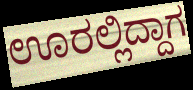
ಊರಲ್ಲಿದ್ದಾಗ